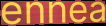
ennea